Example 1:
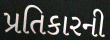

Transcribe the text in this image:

પ્રતિકારની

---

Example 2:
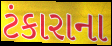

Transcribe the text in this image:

ટંકારાના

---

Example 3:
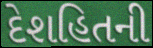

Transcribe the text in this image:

દેશહિતની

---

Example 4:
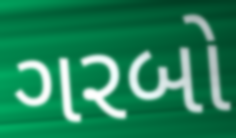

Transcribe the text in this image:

ગરબો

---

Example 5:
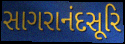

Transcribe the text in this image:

સાગરાનંદસૂરિ